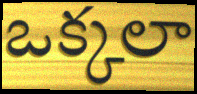
ఒక్కలా